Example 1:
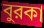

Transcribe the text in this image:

বুরকা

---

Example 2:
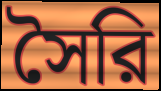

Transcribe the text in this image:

সৈরি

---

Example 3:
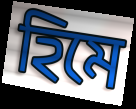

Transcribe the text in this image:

হিমে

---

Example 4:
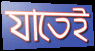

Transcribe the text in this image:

যাতেই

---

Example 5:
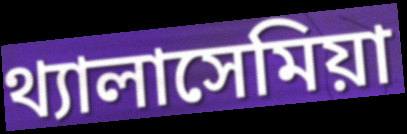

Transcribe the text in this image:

থ্যালাসেমিয়া